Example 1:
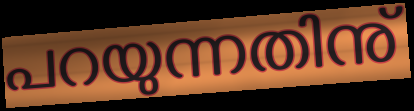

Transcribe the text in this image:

പറയുന്നതിനു്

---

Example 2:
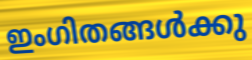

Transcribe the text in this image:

ഇംഗിതങ്ങൾക്കു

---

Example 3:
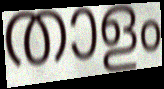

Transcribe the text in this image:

താളം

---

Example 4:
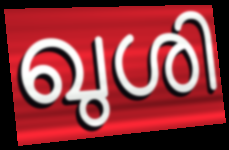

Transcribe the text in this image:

ഖുശി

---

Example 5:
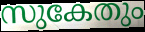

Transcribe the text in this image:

സുകേതും